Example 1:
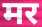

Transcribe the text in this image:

मर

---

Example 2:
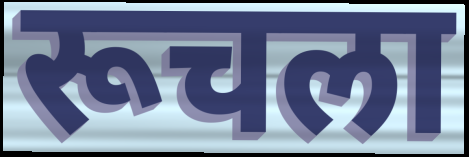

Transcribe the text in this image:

रूचला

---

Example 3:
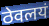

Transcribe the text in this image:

ठेवलयं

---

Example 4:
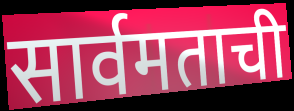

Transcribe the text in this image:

सार्वमताची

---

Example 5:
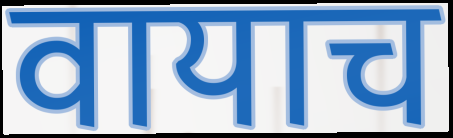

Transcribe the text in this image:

वायाच